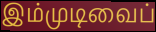
இம்முடிவைப்